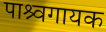
पाश्र्वगायक